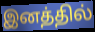
இனத்தில்